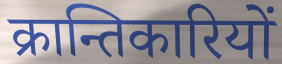
क्रान्तिकारियों